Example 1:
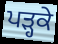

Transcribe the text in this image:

ਪੜ੍ਹਕੇ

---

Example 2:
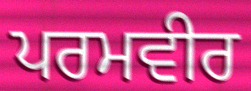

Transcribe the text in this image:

ਪਰਮਵੀਰ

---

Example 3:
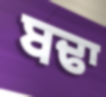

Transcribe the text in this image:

ਬਢਾ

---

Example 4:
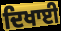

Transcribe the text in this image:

ਦਿਖਾਈ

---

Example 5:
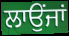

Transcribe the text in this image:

ਲਾਉਂਜਾਂ